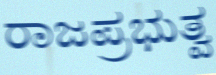
ರಾಜಪ್ರಭುತ್ವ